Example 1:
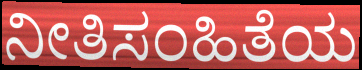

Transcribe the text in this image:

ನೀತಿಸಂಹಿತೆಯ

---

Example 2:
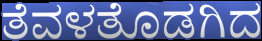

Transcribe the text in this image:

ತೆವಳತೊಡಗಿದ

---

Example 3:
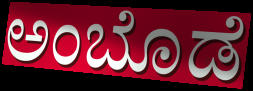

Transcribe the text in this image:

ಅಂಬೊಡೆ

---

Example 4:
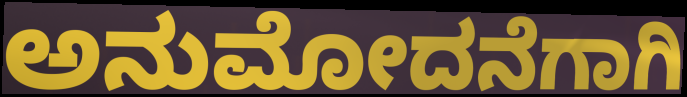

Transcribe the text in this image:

ಅನುಮೋದನೆಗಾಗಿ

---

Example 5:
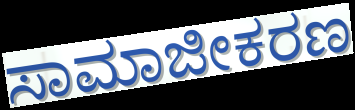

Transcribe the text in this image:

ಸಾಮಾಜೀಕರಣ